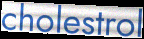
cholestrol